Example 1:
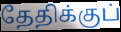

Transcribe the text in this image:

தேதிக்குப்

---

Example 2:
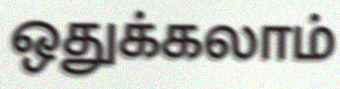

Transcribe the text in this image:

ஒதுக்கலாம்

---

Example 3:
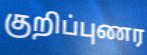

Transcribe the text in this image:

குறிப்புணர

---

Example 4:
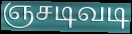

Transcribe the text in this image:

ஞசடிவடி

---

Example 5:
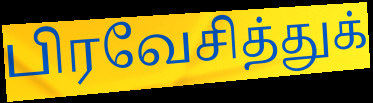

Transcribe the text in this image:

பிரவேசித்துக்